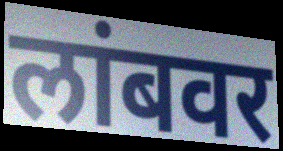
लांबवर